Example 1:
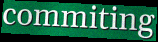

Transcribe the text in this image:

commiting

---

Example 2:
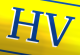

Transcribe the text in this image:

HV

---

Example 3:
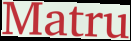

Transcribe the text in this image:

Matru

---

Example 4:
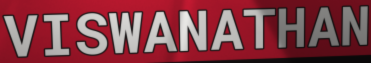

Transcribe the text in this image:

VISWANATHAN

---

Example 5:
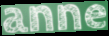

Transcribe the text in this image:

anne